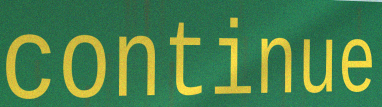
continue